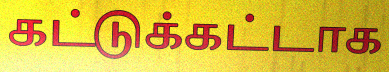
கட்டுக்கட்டாக